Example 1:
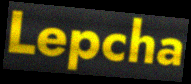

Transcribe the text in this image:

Lepcha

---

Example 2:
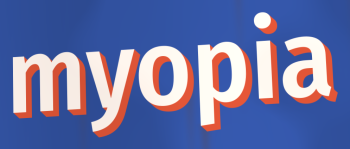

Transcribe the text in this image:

myopia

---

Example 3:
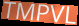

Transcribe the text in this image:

TMPVL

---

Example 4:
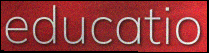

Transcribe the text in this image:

educatio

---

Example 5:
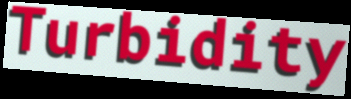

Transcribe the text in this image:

Turbidity